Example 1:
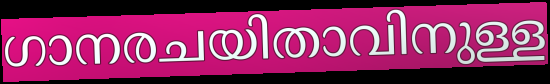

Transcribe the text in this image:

ഗാനരചയിതാവിനുള്ള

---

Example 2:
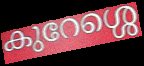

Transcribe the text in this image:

കുറേശ്ശെ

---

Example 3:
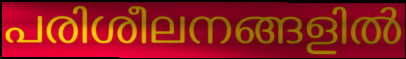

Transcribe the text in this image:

പരിശീലനങ്ങളിൽ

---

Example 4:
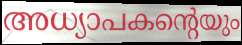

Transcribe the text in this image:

അധ്യാപകന്റെയും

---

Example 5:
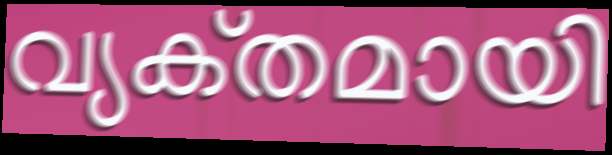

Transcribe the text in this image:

വ്യക്‌തമായി